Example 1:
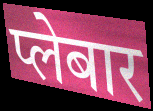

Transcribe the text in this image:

प्लेबार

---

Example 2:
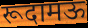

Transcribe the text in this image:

रूदामऊ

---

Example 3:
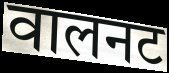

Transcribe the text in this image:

वालनट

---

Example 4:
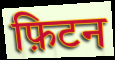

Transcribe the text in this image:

फ़िटन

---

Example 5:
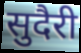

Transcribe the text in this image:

सुदैरी